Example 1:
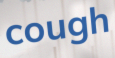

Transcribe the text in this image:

cough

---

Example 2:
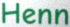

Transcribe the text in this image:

Henn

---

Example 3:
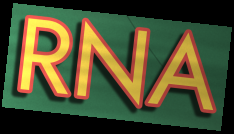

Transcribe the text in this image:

RNA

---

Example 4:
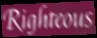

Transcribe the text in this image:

Righteous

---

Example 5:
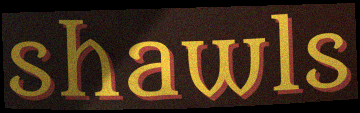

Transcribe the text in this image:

shawls